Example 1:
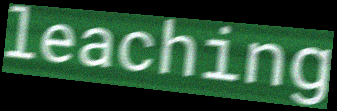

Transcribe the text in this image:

leaching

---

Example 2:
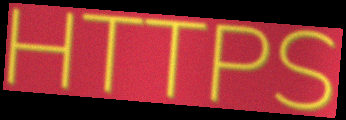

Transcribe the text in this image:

HTTPS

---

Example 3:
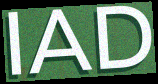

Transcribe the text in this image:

IAD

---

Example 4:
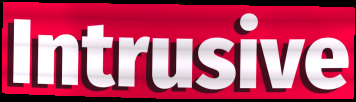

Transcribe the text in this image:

Intrusive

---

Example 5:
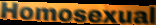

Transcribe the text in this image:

Homosexual